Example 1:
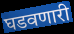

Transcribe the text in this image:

घडवणारी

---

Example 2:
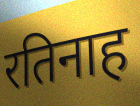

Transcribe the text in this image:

रतिनाह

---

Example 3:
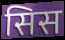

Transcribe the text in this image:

सिस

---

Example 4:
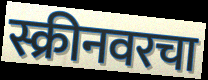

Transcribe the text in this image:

स्क्रीनवरचा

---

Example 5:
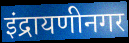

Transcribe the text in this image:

इंद्रायणीनगर